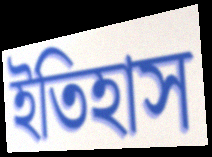
ইতিহাস